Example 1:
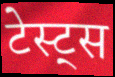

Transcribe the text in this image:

टेस्ट्स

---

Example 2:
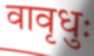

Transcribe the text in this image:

वावृधुः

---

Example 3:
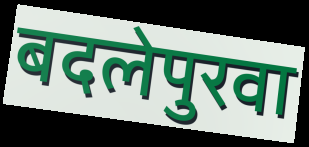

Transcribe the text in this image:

बदलेपुरवा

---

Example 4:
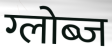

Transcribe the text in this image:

ग्लोब्ज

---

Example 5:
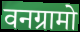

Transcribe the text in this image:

वनग्रामो